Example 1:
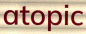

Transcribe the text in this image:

atopic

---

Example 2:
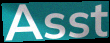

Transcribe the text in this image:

Asst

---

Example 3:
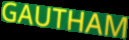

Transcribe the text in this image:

GAUTHAM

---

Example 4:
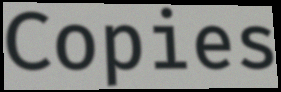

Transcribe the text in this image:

Copies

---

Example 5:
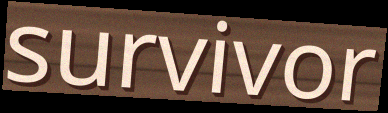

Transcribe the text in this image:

survivor